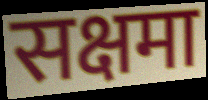
सक्षमा